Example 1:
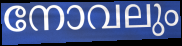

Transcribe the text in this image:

നോവലും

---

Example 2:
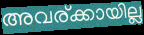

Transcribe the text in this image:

അവര്ക്കായില്ല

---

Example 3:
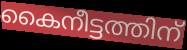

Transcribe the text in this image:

കൈനീട്ടത്തിന്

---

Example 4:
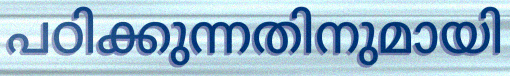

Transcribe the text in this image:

പഠിക്കുന്നതിനുമായി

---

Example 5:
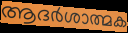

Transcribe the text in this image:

ആദർശാത്മക